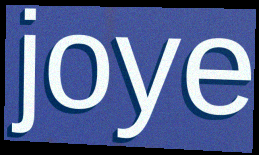
joye